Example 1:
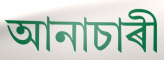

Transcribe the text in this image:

আনাচাৰী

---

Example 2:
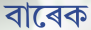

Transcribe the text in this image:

বাৰেক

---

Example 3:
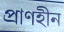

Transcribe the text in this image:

প্ৰাণহীন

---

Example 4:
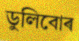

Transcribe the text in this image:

ডুলিবোৰ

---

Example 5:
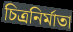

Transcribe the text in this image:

চিত্ৰনিৰ্মাতা